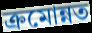
ক্রমোন্নত